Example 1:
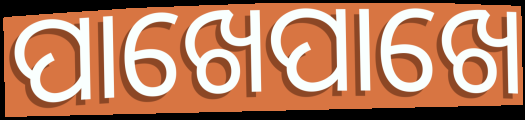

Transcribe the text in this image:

ପାଖେପାଖେ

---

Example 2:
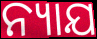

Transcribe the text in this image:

ନ୍ୟାଯ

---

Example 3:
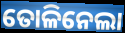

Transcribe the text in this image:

ତୋଳିନେଲା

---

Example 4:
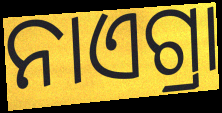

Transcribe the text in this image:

ନାଏଗ୍ରା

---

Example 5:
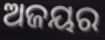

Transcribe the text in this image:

ଅଜୟର